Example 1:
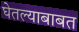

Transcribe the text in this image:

घेतल्याबाबत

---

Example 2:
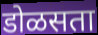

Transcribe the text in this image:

डोळसता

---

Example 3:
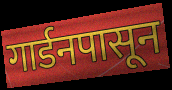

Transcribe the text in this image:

गार्डनपासून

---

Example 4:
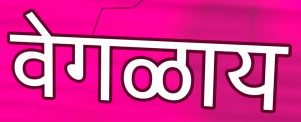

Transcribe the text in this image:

वेगळाय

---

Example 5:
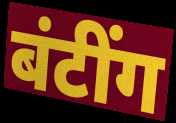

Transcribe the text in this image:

बंटींग